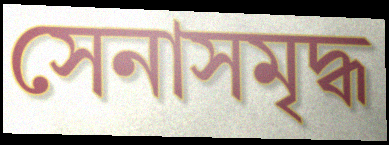
সেনাসমৃদ্ধ